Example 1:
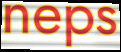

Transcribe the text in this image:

neps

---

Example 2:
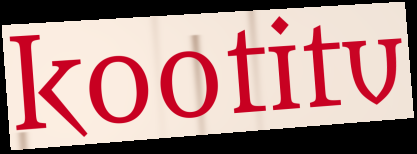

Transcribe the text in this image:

kootitu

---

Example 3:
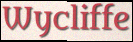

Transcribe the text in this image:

Wycliffe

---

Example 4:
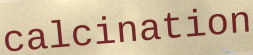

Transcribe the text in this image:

calcination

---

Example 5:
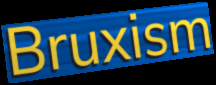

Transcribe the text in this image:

Bruxism